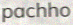
pachho